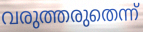
വരുത്തരുതെന്ന്